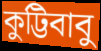
কুট্টিবাবু